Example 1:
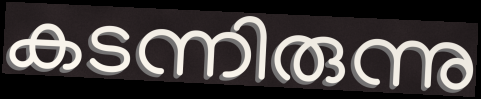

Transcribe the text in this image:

കടന്നിരുന്നു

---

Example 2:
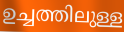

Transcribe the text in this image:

ഉച്ചത്തിലുള്ള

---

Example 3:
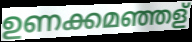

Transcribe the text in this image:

ഉണക്കമഞ്ഞള്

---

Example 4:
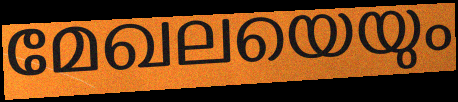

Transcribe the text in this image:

മേഖലയെയും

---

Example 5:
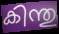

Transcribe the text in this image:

കിന്തു